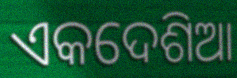
ଏକଦେଶିଆ